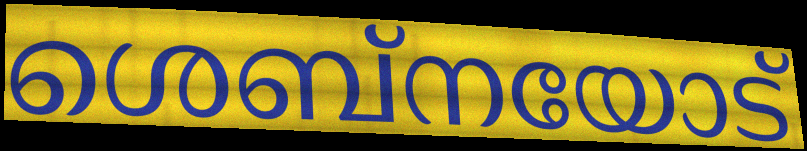
ശെബ്നയോട്